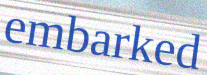
embarked